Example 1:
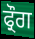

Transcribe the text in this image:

ਫ੍ਰੌਗ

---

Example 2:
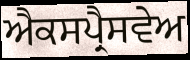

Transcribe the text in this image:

ਐਕਸਪ੍ਰੈਸਵੇਅ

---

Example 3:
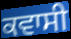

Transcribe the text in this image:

ਕਵਾਸੀ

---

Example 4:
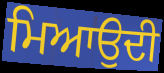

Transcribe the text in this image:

ਮਿਆਉਦੀ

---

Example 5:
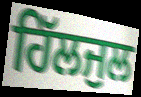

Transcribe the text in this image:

ਹਿੱਲਜੁਲ